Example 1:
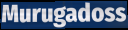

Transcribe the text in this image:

Murugadoss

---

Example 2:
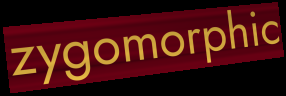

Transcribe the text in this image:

zygomorphic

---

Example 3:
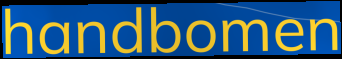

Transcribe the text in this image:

handbomen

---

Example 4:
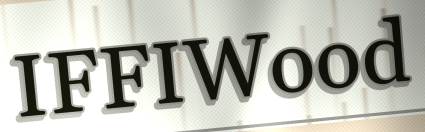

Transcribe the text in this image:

IFFIWood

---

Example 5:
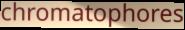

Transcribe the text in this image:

chromatophores